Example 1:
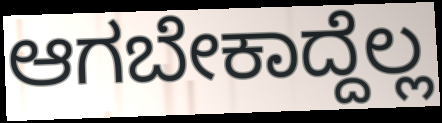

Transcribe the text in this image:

ಆಗಬೇಕಾದ್ದೆಲ್ಲ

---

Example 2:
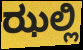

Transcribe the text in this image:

ಝಲ್ಲಿ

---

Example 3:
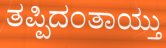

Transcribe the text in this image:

ತಪ್ಪಿದಂತಾಯ್ತು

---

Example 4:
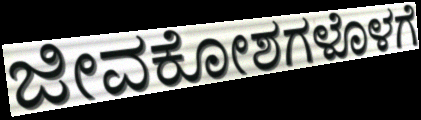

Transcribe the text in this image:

ಜೀವಕೋಶಗಳೊಳಗೆ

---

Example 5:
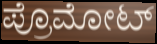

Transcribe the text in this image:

ಪ್ರೊಮೋಟ್